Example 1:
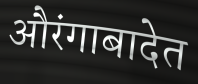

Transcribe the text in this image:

औरंगाबादेत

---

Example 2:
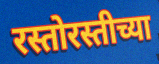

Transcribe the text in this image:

रस्तोरस्तीच्या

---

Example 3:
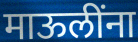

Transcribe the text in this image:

माऊलींना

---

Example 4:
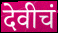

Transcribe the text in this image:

देवीचं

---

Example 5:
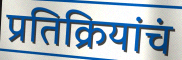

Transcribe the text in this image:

प्रतिक्रियांचं